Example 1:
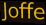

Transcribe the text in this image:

Joffe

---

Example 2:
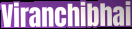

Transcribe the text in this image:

Viranchibhai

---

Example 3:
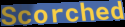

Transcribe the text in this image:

Scorched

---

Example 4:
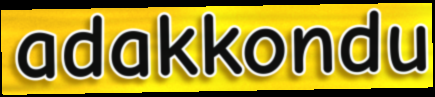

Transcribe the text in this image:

adakkondu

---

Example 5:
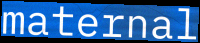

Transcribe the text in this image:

maternal